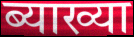
ब्याख्या